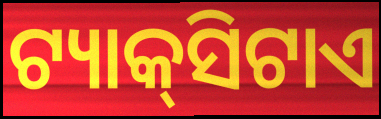
ଟ୍ୟାକ୍‌ସିଟାଏ